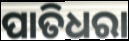
ପାତିଧରା